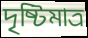
দৃষ্টিমাত্র